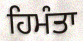
ਹਿਮੰਤਾ